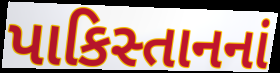
પાકિસ્તાનનાં